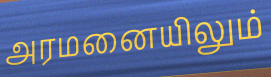
அரமனையிலும்